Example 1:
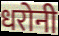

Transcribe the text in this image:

धरोनी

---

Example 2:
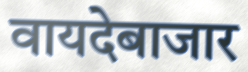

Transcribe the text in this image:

वायदेबाजार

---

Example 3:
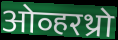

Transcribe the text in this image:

ओव्हरथ्रो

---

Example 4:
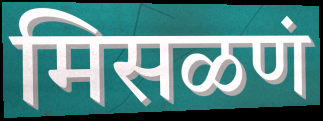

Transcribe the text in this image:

मिसळणं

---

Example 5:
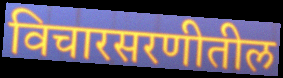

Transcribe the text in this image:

विचारसरणीतील